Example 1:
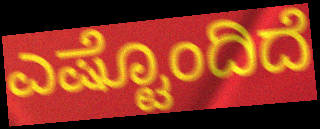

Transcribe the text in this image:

ಎಷ್ಟೊಂದಿದೆ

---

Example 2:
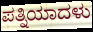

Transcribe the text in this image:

ಪತ್ನಿಯಾದಳು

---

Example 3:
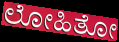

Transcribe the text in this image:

ಲೋಹಿತೋ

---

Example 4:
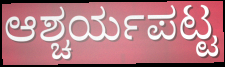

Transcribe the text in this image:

ಆಶ್ಚರ್ಯಪಟ್ಟ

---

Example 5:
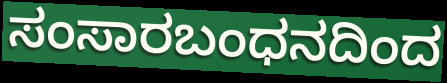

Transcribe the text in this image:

ಸಂಸಾರಬಂಧನದಿಂದ